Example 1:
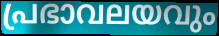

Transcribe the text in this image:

പ്രഭാവലയവും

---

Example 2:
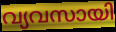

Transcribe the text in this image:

വ്യവസായി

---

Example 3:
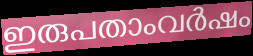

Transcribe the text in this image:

ഇരുപതാംവർഷം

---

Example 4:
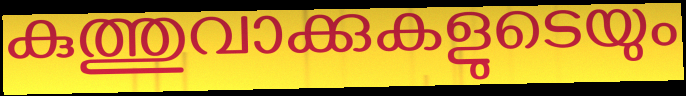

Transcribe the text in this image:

കുത്തുവാക്കുകളുടെയും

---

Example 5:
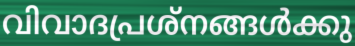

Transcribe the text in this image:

വിവാദപ്രശ്നങ്ങൾക്കു